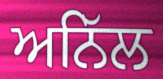
ਅਨਿੱਲ